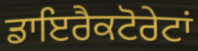
ਡਾਇਰੈਕਟੋਰੇਟਾਂ